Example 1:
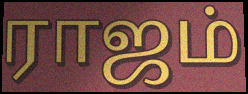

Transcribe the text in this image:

ராஜம்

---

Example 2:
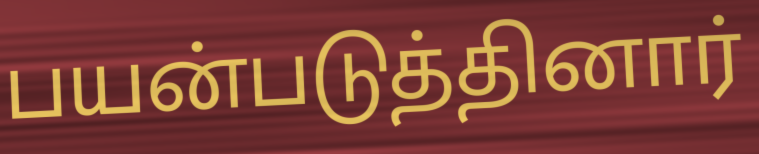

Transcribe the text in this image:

பயன்படுத்தினார்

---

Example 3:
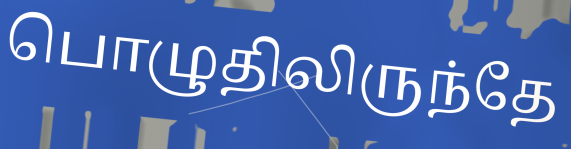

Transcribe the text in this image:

பொழுதிலிருந்தே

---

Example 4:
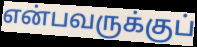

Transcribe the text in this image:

என்பவருக்குப்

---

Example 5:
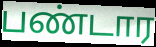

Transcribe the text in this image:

பண்டார